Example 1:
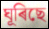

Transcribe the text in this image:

ঘূৰিছে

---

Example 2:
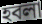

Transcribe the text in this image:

হবলা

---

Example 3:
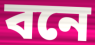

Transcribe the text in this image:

বনে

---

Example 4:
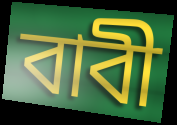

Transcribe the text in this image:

বাবী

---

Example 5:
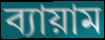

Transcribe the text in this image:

ব্যায়াম